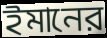
ইমানের